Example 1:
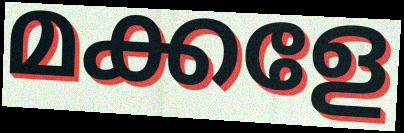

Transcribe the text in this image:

മക്കളേ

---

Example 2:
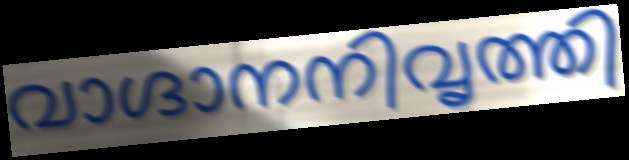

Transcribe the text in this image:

വാഗ്ദാനനിവൃത്തി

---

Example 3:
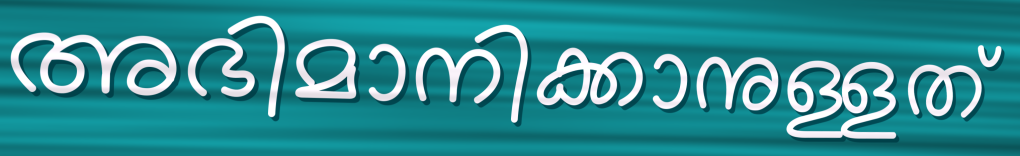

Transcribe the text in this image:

അഭിമാനിക്കാനുള്ളത്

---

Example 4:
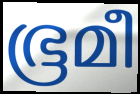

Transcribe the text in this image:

ഭൂമീ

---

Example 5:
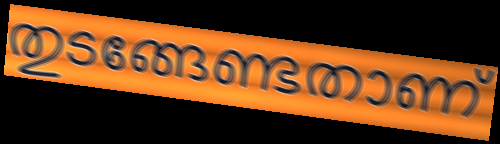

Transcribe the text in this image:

തുടങ്ങേണ്ടതാണ്